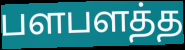
பளபளத்த